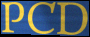
PCD